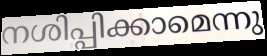
നശിപ്പിക്കാമെന്നു